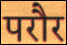
परौर